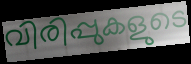
വിരിപ്പുകളുടെ